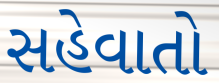
સહેવાતો